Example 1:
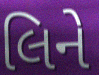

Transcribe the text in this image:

લિને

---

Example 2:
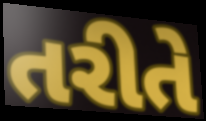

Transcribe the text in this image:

તરીતે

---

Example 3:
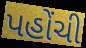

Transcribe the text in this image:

પહોંચી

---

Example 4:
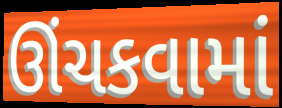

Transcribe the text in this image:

ઊંચકવામાં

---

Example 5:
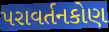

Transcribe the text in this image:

પરાવર્તનકોણ